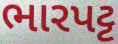
ભારપટ્ટ